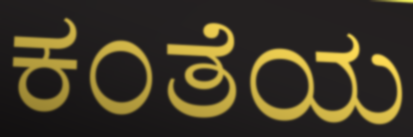
ಕಂತೆಯ